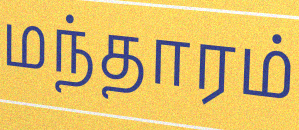
மந்தாரம்